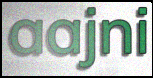
aajni